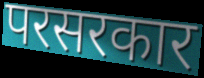
परसरकार